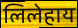
लिलेहाय